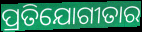
ପ୍ରତିଯୋଗୀତାର